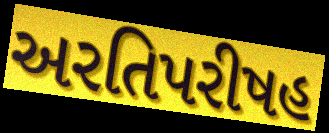
અરતિપરીષહ